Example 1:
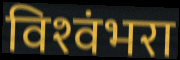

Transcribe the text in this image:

विश्वंभरा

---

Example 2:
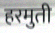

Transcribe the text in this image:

हरमुती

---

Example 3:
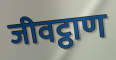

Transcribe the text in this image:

जीवट्ठाण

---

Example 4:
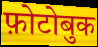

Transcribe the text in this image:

फ़ोटोबुक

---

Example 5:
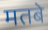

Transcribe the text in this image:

मतबे